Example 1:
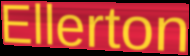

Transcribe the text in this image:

Ellerton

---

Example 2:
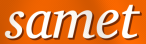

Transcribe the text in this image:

samet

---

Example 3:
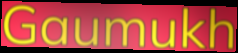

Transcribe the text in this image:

Gaumukh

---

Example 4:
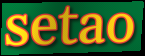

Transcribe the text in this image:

setao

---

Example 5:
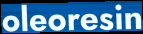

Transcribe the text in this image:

oleoresin